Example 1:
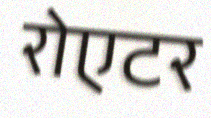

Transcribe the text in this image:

रोएटर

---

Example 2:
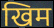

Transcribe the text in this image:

खिम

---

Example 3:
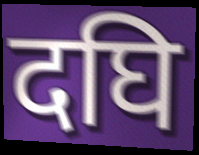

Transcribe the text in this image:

दघि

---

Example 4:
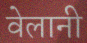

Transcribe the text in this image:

वेलानी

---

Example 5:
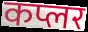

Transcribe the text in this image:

कप्लर